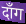
दाँग